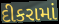
દીકરામાં